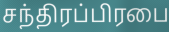
சந்திரப்பிரபை